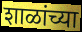
शाळांच्या